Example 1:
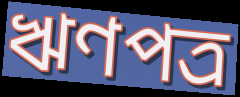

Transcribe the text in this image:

ঋণপত্র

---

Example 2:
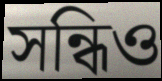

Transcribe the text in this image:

সন্ধিও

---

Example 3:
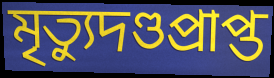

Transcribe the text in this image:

মৃত্যুদণ্ডপ্রাপ্ত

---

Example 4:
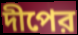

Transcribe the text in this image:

দীপের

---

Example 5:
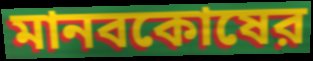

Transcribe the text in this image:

মানবকোষের